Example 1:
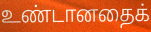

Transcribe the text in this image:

உண்டானதைக்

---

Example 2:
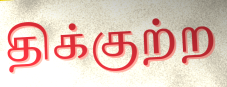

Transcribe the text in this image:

திக்குற்ற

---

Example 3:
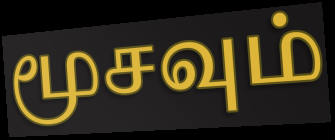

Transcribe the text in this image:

மூசவும்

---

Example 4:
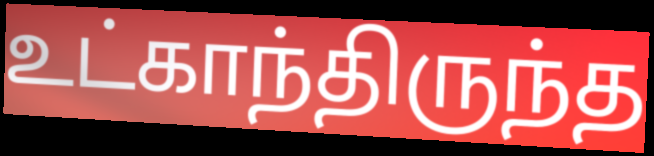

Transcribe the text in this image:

உட்காந்திருந்த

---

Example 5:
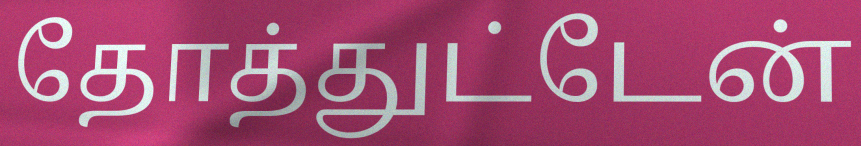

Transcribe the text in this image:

தோத்துட்டேன்